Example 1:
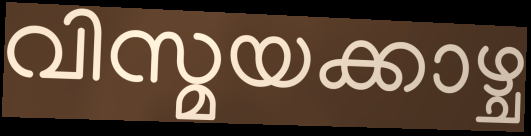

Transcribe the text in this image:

വിസ്മയക്കാഴ്ച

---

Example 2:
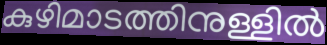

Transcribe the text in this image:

കുഴിമാടത്തിനുള്ളിൽ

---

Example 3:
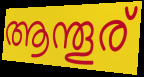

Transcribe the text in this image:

ആന്തൂര്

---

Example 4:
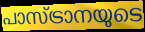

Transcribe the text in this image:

പാസ്ട്രാനയുടെ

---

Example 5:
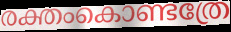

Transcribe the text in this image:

രക്തംകൊണ്ടത്രേ